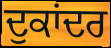
ਦੁਕਾਂਦਰ